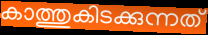
കാത്തുകിടക്കുന്നത്